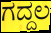
ಗದ್ದಲ